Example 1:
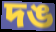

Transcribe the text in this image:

দঙ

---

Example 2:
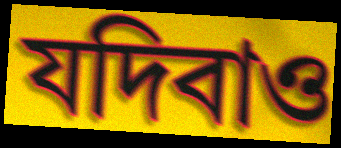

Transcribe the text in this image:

যদিবাও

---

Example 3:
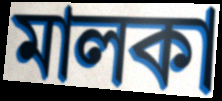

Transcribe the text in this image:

মালকা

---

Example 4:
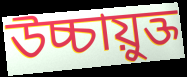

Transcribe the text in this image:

উচ্চায়ুক্ত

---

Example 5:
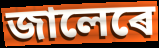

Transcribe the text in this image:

জালেৰে